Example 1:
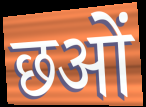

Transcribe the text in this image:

छओं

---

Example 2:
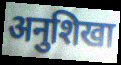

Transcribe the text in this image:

अनुशिखा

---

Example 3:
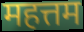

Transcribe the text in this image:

महत्तम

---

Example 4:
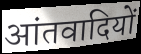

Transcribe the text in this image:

आंतवादियों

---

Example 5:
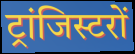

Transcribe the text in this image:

ट्रांजिस्टरों